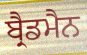
ਬ੍ਰੈਡਮੈਨ